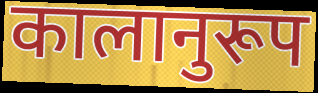
कालानुरूप